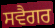
ਸਵੈਗਰ